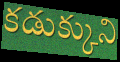
కడుక్కుని